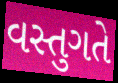
વસ્તુગતે